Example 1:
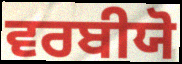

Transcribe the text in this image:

ਵਰਬੀਯੋ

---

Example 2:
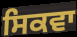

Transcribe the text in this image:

ਸਿਕਵਾ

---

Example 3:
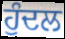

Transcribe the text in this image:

ਹੁੰਦਲ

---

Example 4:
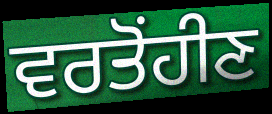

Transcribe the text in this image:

ਵਰਤੋਂਹੀਣ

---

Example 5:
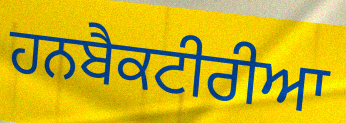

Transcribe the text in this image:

ਹਨਬੈਕਟੀਰੀਆ